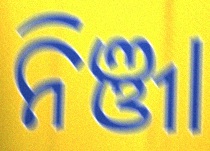
ନିଞ୍ଜା